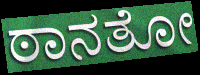
ಠಾನತೋ